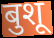
बुशू